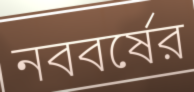
নববর্ষের